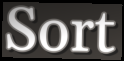
Sort